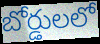
బోర్డులలో